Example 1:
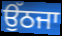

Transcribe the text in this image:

ਉੱਠਜਾ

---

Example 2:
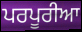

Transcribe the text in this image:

ਪਰਪੂਰੀਆ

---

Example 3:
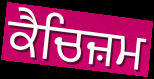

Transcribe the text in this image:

ਕੈਚਿਜ਼ਮ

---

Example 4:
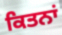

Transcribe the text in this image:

ਕਿਤਨਾਂ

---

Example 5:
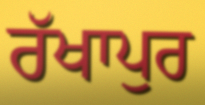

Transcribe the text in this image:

ਰੱਖਾਪੁਰ